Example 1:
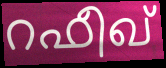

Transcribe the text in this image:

റഫീഖ്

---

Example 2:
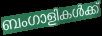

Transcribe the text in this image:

ബംഗാളികൾക്ക്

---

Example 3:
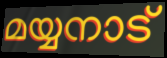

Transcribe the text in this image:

മയ്യനാട്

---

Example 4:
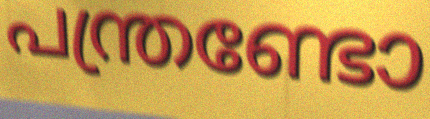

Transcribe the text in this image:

പന്ത്രണ്ടോ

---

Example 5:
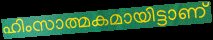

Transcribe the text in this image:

ഹിംസാത്മകമായിട്ടാണ്